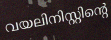
വയലിനിസ്റ്റിന്റെ